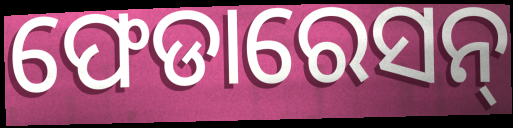
ଫେଡାରେସନ୍